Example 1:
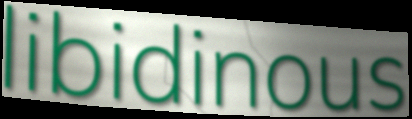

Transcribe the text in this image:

libidinous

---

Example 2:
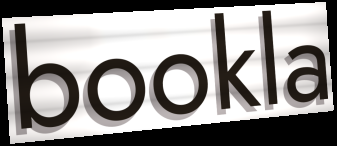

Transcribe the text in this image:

bookla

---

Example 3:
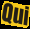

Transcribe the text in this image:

Qui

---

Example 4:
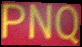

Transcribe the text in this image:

PNQ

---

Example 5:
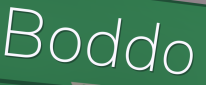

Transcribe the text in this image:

Boddo